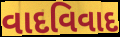
વાદવિવાદ